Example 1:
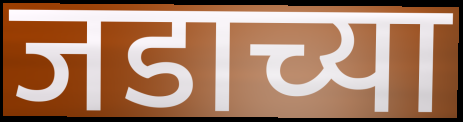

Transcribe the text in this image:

जडाच्या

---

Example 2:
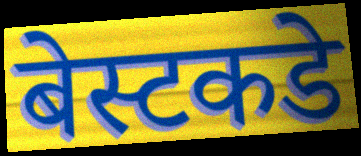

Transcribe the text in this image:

बेस्टकडे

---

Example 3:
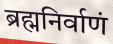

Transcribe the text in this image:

ब्रह्मनिर्वाणं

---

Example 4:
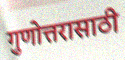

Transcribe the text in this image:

गुणोत्तरासाठी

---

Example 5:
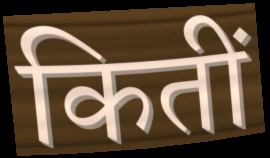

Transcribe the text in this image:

कितीं